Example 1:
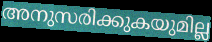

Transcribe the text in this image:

അനുസരിക്കുകയുമില്ല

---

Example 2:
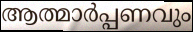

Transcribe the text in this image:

ആത്മാർപ്പണവും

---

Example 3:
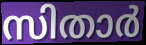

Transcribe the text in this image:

സിതാർ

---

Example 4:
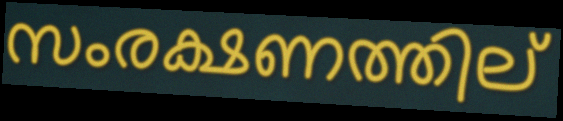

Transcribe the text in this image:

സംരക്ഷണത്തില്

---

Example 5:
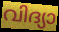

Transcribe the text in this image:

വിദ്യാ